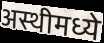
अस्थीमध्ये